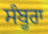
ਸੰਬੂਰਾ